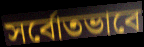
সর্বোতভাবে